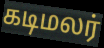
கடிமலர்